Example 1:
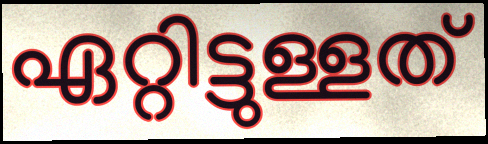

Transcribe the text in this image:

ഏറ്റിട്ടുള്ളത്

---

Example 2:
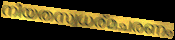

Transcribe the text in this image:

നിയതസ്വധര്മചരണം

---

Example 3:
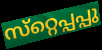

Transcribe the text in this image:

സ്‌റ്റെപ്പപ്പു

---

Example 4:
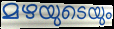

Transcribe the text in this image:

മഴയുടെയും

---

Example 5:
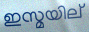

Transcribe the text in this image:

ഇസ്മയില്